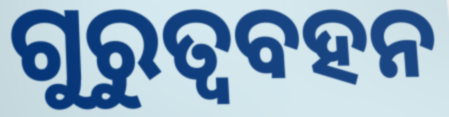
ଗୁରୁତ୍ୱବହନ